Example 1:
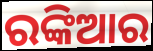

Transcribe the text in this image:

ରଙ୍କିଆର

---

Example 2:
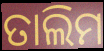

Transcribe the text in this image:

ତାଲିମ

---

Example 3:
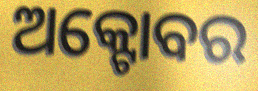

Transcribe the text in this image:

ଅକ୍ଟୋବର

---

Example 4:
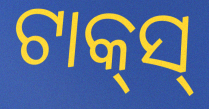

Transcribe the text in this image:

ଟାକ୍‍ସ୍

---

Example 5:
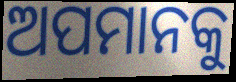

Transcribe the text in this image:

ଅପମାନକୁ